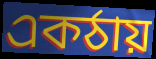
একঠায়